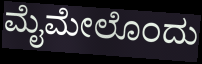
ಮೈಮೇಲೊಂದು